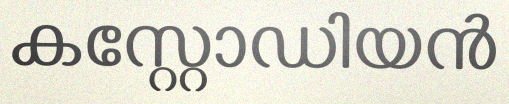
കസ്റ്റോഡിയൻ